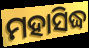
ମହାସିଦ୍ଧ